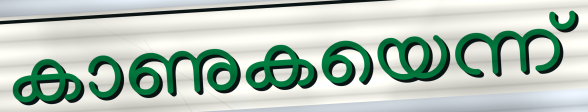
കാണുകയെന്ന്